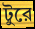
টুরে